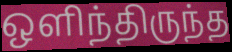
ஒளிந்திருந்த